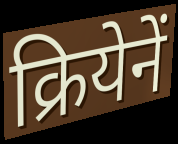
क्रियेनें